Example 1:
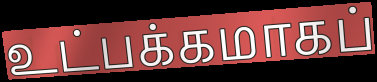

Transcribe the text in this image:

உட்பக்கமாகப்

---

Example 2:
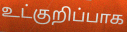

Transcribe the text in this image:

உட்குறிப்பாக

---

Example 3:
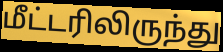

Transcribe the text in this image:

மீட்டரிலிருந்து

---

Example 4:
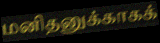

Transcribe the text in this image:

மனிதனுக்காகக்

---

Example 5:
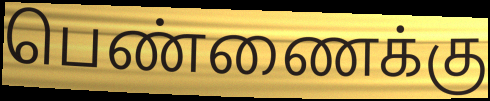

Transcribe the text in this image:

பெண்ணைக்கு